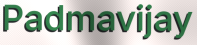
Padmavijay